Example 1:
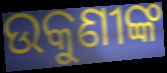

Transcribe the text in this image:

ଉକୁଣୀଙ୍କ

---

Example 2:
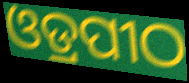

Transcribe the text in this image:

ଓଡ୍ରପୀଠ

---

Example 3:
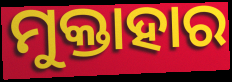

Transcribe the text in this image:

ମୁକ୍ତାହାର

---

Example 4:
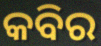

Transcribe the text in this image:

କବିର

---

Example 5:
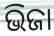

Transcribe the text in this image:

ଭିଜା